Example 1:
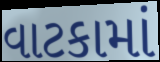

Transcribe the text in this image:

વાટકામાં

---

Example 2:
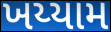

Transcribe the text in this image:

ખય્યામ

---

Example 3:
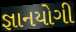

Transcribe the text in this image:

જ્ઞાનયોગી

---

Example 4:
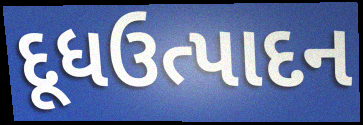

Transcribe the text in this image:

દૂધઉત્પાદન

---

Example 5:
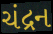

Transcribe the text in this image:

ચંદ્રન